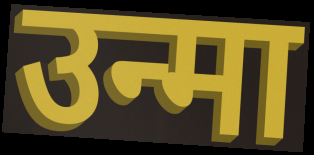
उन्मा